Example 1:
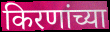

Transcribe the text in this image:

किरणांच्या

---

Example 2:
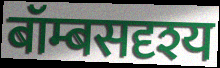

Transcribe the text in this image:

बॉम्बसदृश्य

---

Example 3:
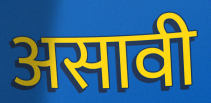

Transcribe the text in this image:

असावी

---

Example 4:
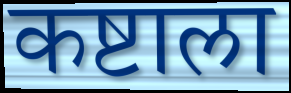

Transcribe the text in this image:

कष्टाला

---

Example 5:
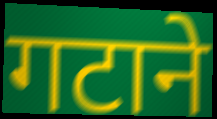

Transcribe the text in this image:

गटाने